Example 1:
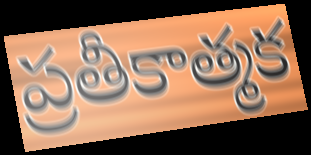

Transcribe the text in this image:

ప్రతీకాత్మక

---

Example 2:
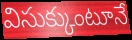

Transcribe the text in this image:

విసుక్కుంటూనే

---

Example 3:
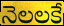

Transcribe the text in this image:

నెలలకే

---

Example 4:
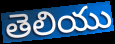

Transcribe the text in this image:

తెలియు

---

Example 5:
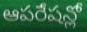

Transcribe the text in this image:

ఆపరేషన్లో